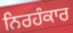
ਨਿਰਹੰਕਾਰ